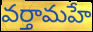
వర్తామహే